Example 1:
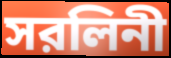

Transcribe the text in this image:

সরলিনী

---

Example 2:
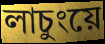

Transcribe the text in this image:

লাচুংয়ে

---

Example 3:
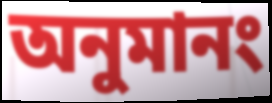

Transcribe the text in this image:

অনুমানং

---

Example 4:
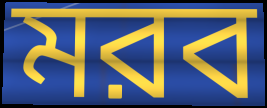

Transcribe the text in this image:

মরব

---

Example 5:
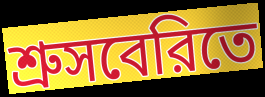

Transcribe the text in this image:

শ্রুসবেরিতে